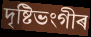
দৃষ্টিভংগীৰ